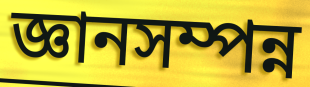
জ্ঞানসম্পন্ন